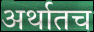
अर्थातच